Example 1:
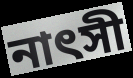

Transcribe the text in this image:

নাৎসী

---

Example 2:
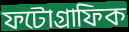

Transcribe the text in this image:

ফটোগ্ৰাফিক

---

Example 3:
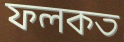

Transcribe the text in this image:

ফলকত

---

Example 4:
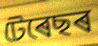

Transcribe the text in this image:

টেৰেছৰ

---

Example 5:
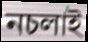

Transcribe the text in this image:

নচলাই